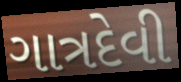
ગાત્રદેવી